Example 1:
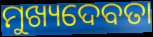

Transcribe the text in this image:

ମୁଖ୍ୟଦେବତା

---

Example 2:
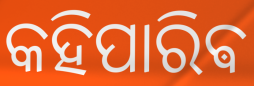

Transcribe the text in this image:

କହିପାରିଵ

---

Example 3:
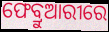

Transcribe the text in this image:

ଫେବ୍ରୁଆରୀରେ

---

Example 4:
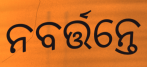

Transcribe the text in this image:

ନବର୍ତ୍ତନ୍ତେ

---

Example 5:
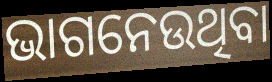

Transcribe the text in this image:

ଭାଗନେଉଥିବା